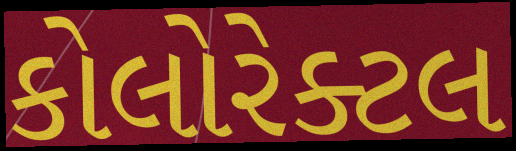
કોલોરેક્ટલ